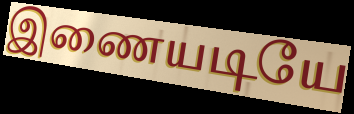
இணையடியே